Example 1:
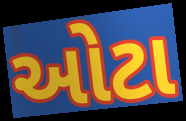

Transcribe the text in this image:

ઓટા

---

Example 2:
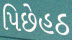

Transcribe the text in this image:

પિછેહઠ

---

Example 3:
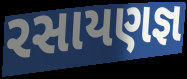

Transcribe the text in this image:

રસાયણજ્ઞ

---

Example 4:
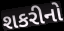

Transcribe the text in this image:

શકરીનો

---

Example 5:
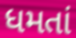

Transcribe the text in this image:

ધમતાં